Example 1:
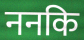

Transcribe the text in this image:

ननकि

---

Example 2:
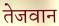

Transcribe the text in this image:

तेजवान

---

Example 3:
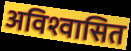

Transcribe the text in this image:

अविश्वासित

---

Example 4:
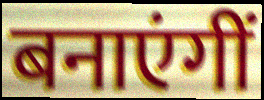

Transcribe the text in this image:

बनाएंगीं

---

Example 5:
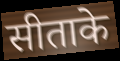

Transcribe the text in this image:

सीताके